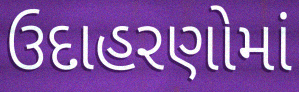
ઉદાહરણોમાં